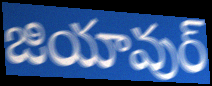
జియావుర్